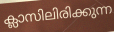
ക്ലാസിലിരിക്കുന്ന